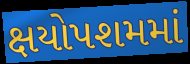
ક્ષયોપશમમાં